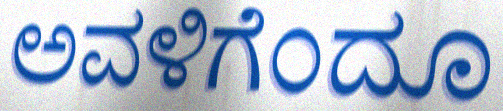
ಅವಳಿಗೆಂದೂ